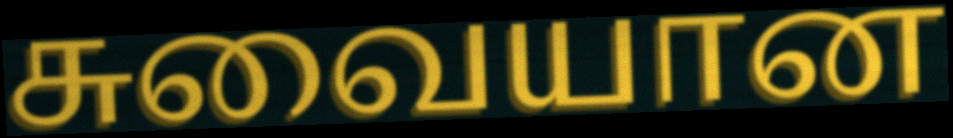
சுவையான